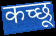
कच्छू